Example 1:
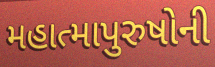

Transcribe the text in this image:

મહાત્માપુરુષોની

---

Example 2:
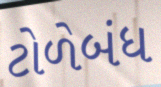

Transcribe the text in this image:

ટોળેબંધ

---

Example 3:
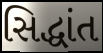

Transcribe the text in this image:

સિદ્ધાંત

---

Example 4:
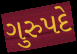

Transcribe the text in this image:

ગુરુપદે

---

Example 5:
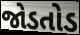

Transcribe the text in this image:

જોડતોડ